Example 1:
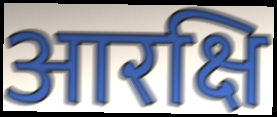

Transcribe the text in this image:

आरक्षि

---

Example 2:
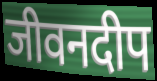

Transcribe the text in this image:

जीवनदीप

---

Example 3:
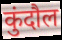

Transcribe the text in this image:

कुंदौल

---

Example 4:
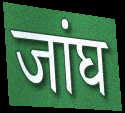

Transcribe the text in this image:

जांघ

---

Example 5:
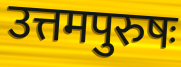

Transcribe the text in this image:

उत्तमपुरुषः